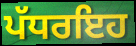
ਪੱਧਰਇਹ